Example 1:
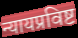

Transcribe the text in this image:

न्यायप्रविष्ट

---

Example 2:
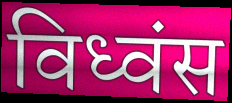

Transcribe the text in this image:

विध्वंस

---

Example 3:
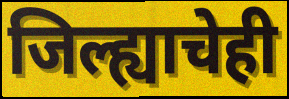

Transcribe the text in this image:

जिल्ह्याचेही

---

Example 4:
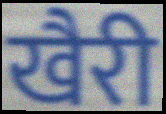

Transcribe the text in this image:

खैरी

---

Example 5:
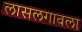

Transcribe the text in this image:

लासलगावला